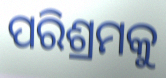
ପରିଶ୍ରମକୁ